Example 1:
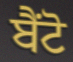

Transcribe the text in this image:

ਬੈਂਟੋ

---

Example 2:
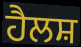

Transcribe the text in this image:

ਹੈਲਸ਼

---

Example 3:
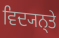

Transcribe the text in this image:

ਵਿਦ੍ਯਨ੍ਤੇ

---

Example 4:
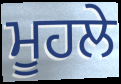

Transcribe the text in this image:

ਮੂਹਲੇ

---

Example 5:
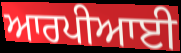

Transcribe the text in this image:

ਆਰਪੀਆਈ